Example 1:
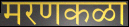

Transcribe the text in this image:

मरणकळा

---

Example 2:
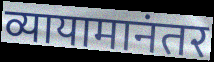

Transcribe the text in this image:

व्यायामानंतर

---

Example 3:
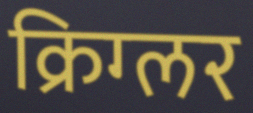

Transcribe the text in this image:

क्रिग्लर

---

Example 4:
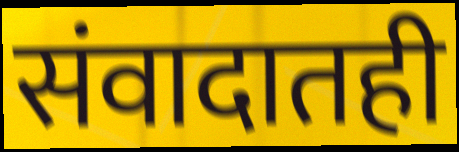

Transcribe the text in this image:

संवादातही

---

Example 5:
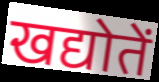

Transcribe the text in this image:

खद्योतें